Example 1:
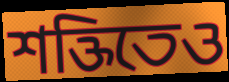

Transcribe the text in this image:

শক্তিতেও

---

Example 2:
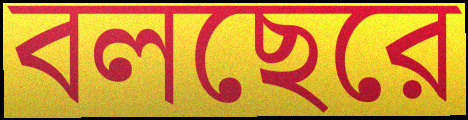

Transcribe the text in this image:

বলছেরে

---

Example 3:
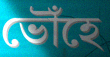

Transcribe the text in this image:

ভৌঁহে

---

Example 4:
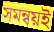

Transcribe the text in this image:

সমন্বয়ই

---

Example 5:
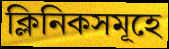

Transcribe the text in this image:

ক্লিনিকসমূহে